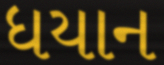
ધયાન